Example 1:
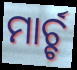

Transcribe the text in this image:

ମାର୍ଚ୍ଚ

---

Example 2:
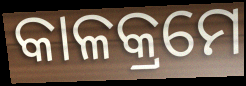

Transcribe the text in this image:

କାଳକ୍ରମେ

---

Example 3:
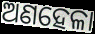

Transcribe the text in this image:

ଅଣହେଳା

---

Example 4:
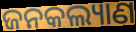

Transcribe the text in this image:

ଜନକଲ୍ୟାଣ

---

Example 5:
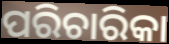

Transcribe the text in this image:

ପରିଚାରିକା